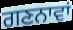
ਗਣਨਾਵਾਂ